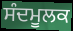
ਸੰਦਮੂਲਕ